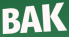
BAK